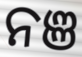
ନଞ